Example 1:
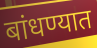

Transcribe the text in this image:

बांधण्यात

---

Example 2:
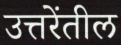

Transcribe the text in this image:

उत्तरेंतील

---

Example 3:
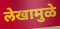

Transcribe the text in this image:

लेखामुळे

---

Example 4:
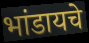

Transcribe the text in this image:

भांडायचे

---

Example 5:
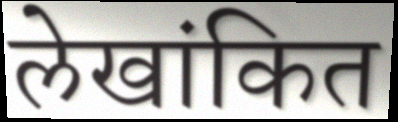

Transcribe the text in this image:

लेखांकित